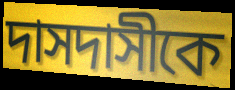
দাসদাসীকে